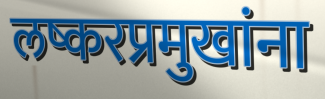
लष्करप्रमुखांना